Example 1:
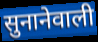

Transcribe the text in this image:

सुनानेवाली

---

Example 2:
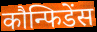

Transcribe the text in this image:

कौन्फिडेंस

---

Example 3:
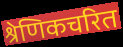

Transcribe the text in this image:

श्रेणिकचरित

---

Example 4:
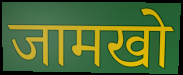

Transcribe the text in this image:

जामखो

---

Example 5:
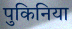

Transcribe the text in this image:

पुकिनिया